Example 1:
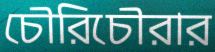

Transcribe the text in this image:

চৌরিচৌরার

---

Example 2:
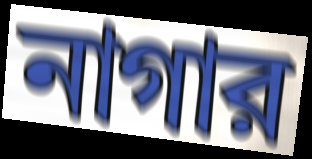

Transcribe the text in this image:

নাগার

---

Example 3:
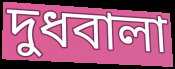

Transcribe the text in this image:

দুধবালা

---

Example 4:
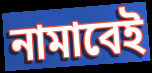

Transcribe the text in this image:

নামাবেই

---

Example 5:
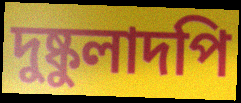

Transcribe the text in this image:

দুষ্কুলাদপি